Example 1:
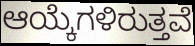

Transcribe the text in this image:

ಆಯ್ಕೆಗಳಿರುತ್ತವೆ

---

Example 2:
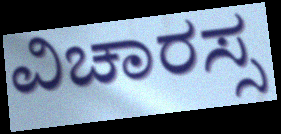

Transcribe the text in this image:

ವಿಚಾರಸ್ಸ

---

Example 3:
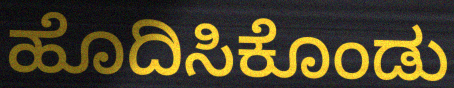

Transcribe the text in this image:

ಹೊದಿಸಿಕೊಂಡು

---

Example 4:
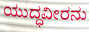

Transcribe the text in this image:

ಯುದ್ಧವೀರನು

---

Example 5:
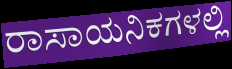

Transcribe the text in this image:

ರಾಸಾಯನಿಕಗಳಲ್ಲಿ